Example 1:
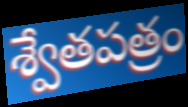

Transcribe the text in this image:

శ్వేతపత్రం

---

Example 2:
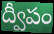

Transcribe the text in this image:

ద్వీపం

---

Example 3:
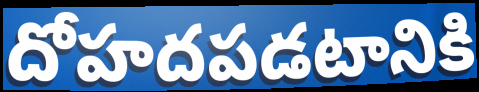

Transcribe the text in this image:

దోహదపడటానికి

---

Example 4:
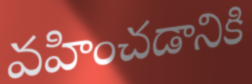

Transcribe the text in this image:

వహించడానికి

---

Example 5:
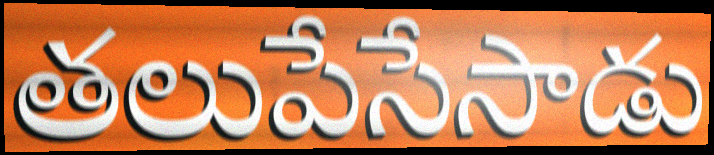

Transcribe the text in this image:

తలుపేసేసాడు